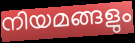
നിയമങ്ങളും